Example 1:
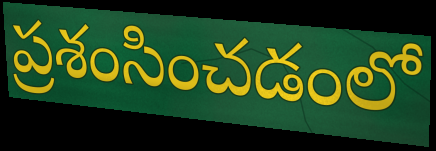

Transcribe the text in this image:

ప్రశంసించడంలో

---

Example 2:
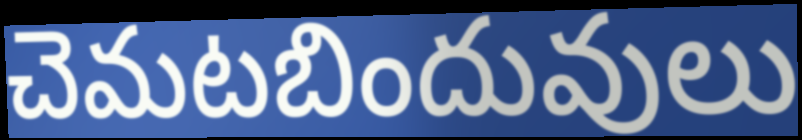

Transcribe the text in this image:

చెమటబిందువులు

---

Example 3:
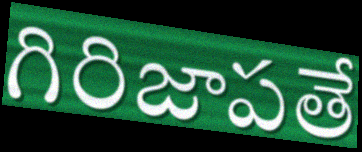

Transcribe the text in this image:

గిరిజాపతే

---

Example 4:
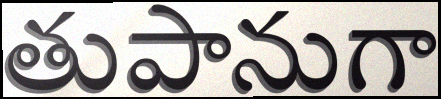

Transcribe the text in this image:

తుపానుగా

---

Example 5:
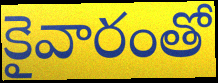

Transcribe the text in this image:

కైవారంతో